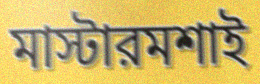
মাস্টারমশাই